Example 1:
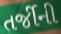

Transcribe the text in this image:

તર્જીની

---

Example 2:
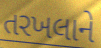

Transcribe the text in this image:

તરખલાને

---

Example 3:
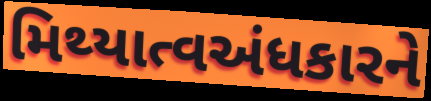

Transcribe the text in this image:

મિથ્યાત્વઅંધકારને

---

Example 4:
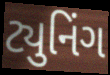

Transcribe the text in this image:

ટ્યુનિંગ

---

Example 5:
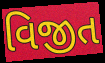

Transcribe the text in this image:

વિજીત